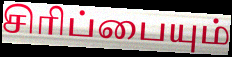
சிரிப்பையும்